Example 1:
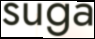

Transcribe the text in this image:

suga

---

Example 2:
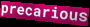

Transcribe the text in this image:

precarious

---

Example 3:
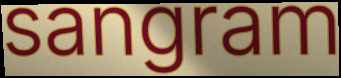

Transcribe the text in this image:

sangram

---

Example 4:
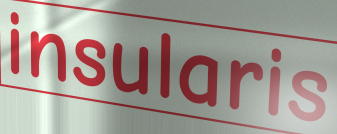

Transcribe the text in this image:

insularis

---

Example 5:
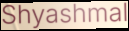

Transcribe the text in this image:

Shyashmal